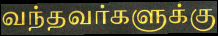
வந்தவர்களுக்கு